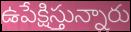
ఉపేక్షిస్తున్నారు